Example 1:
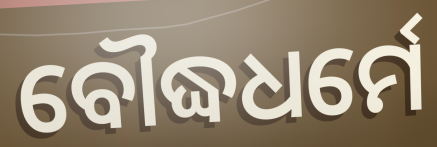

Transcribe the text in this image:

ବୌଦ୍ଧଧର୍ମେ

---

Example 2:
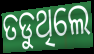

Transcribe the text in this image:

ତଡୁଥିଲେ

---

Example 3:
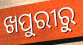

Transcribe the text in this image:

ଖପୁରୀରୁ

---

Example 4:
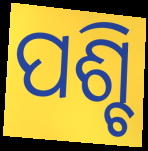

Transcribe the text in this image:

ପଶ୍ଚି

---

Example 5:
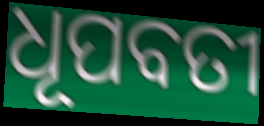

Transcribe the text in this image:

ଧୂପବତୀ